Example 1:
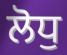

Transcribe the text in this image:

ਲੋਧੁ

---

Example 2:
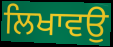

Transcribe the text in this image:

ਲਿਖਾਵਉ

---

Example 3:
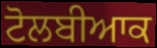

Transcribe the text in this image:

ਟੋਲਬੀਆਕ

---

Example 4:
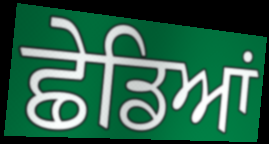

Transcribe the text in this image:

ਛੇਡਿਆਂ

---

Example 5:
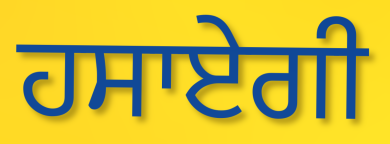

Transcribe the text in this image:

ਹਸਾਏਗੀ